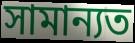
সামান্যত